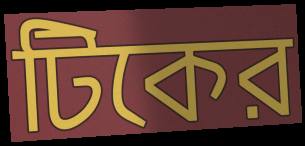
টিকের